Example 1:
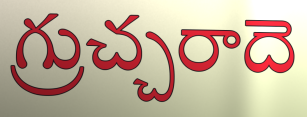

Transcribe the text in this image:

గ్రుచ్చరాదె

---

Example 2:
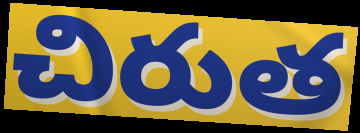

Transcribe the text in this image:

చిరుత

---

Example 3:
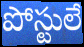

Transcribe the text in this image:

పోస్టులే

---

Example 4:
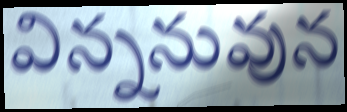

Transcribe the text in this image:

విన్ననువున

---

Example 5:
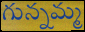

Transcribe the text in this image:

గున్నమ్మ